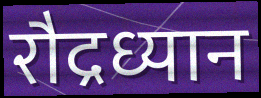
रौद्रध्यान